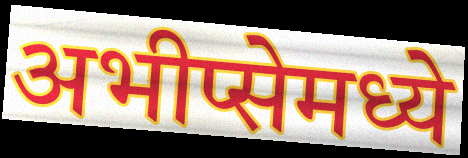
अभीप्सेमध्ये